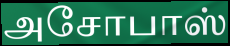
அசோபாஸ்